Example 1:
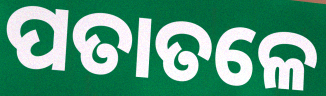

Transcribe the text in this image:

ପତାତଳେ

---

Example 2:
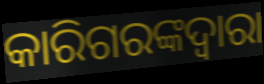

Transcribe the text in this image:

କାରିଗରଙ୍କଦ୍ୱାରା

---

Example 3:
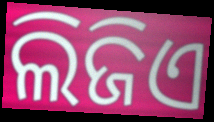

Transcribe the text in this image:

ଲିଜିଏ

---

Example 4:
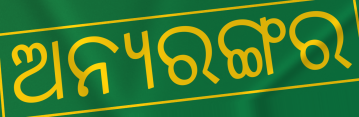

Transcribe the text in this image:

ଅନ୍ୟରଙ୍ଗର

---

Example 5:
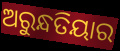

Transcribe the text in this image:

ଅରୁନ୍ଧତିୟାର